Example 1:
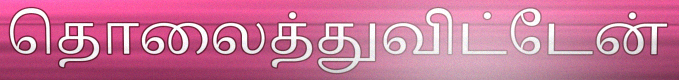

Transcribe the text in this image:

தொலைத்துவிட்டேன்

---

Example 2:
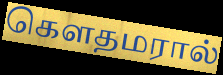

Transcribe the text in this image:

கௌதமரால்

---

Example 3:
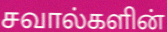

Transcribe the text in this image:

சவால்களின்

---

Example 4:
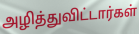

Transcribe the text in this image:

அழித்துவிட்டார்கள்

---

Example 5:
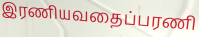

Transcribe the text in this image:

இரணியவதைப்பரணி